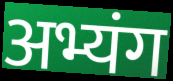
अभ्यंग